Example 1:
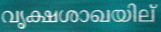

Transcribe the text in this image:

വൃക്ഷശാഖയില്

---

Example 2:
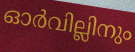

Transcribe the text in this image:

ഓർവില്ലിനും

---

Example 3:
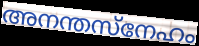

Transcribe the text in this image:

അനന്തസ്നേഹം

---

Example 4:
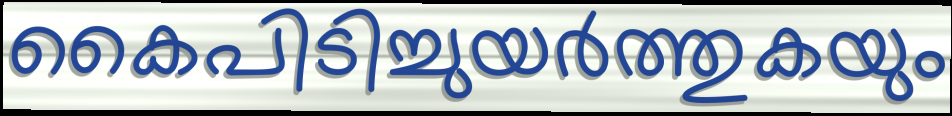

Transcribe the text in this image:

കൈപിടിച്ചുയർത്തുകയും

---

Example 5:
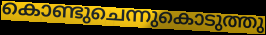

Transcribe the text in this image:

കൊണ്ടുചെന്നുകൊടുത്തു